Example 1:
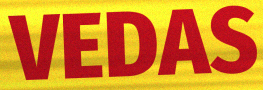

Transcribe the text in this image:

VEDAS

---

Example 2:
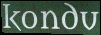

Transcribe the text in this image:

kondu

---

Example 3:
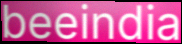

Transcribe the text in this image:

beeindia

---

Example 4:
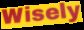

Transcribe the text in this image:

Wisely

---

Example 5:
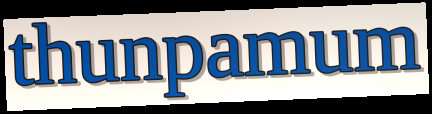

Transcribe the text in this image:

thunpamum